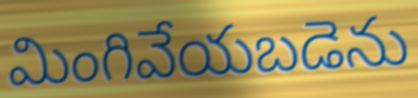
మింగివేయబడెను